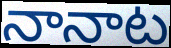
నానాట